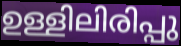
ഉള്ളിലിരിപ്പു